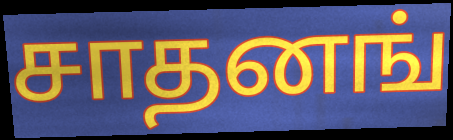
சாதனங்